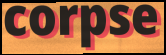
corpse